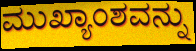
ಮುಖ್ಯಾಂಶವನ್ನು